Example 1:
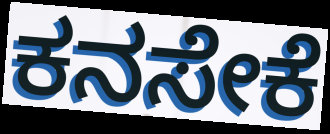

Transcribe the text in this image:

ಕನಸೇಕೆ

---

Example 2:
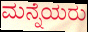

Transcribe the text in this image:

ಮನ್ನೆಯರು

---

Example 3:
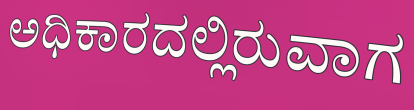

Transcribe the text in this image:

ಅಧಿಕಾರದಲ್ಲಿರುವಾಗ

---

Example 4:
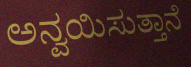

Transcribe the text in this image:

ಅನ್ವಯಿಸುತ್ತಾನೆ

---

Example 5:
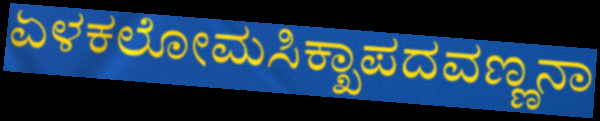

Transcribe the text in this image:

ಏಳಕಲೋಮಸಿಕ್ಖಾಪದವಣ್ಣನಾ